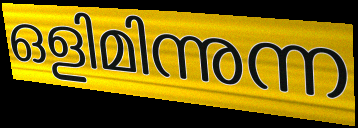
ഒളിമിന്നുന്ന